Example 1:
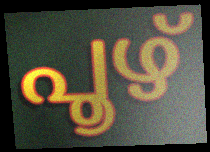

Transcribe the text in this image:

പൂഴ്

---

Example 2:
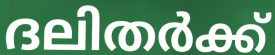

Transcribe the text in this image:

ദലിതർക്ക്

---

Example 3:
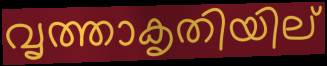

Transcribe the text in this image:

വൃത്താകൃതിയില്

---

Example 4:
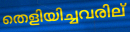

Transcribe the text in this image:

തെളിയിച്ചവരില്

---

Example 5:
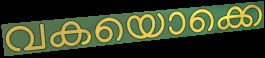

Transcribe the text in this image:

വകയൊക്കെ